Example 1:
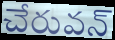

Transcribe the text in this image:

చేరువన్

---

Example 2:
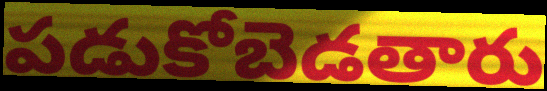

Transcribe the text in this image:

పడుకోబెడతారు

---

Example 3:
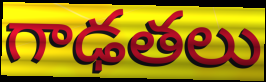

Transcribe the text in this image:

గాఢతలు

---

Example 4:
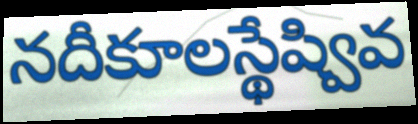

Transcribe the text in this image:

నదీకూలస్థేష్వివ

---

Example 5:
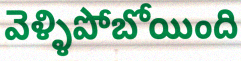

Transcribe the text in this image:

వెళ్ళిపోబోయింది